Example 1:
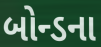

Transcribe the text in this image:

બોન્ડના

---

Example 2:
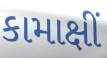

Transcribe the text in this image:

કામાક્ષીં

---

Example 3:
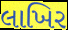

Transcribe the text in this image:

લાખિર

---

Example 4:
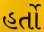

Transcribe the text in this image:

હર્તો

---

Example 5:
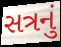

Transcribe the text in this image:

સત્રનું